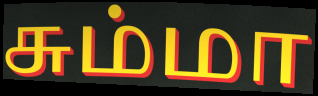
சும்மா